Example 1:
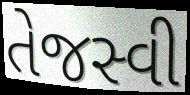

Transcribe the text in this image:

તેજસ્વી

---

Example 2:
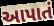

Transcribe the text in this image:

આપાતં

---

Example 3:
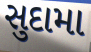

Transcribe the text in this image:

સુદામા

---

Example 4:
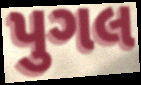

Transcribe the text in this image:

પુગલ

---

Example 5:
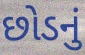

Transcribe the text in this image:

છોડનું